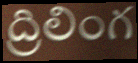
ద్రిలింగ